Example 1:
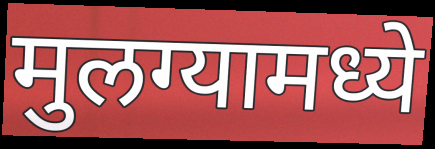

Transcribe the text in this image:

मुलग्यामध्ये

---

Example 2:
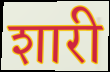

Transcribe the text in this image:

शारी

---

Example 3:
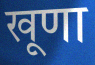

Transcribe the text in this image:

खूणा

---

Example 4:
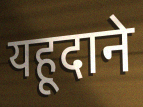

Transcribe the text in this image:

यहूदाने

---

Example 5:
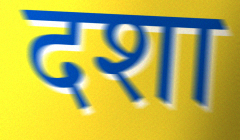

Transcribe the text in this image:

दशा